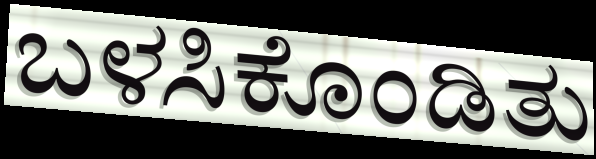
ಬಳಸಿಕೊಂಡಿತು